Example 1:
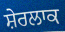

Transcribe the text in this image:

ਸ਼ੇਰਲਾਕ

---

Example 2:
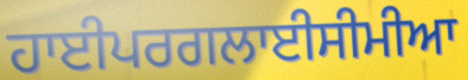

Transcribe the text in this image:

ਹਾਈਪਰਗਲਾਈਸੀਮੀਆ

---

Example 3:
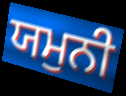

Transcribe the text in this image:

ਯਮੁਨੀ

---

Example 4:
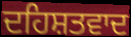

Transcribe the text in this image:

ਦਹਿਸ਼ਤਵਾਦ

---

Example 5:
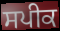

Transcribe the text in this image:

ਸਪੀਕ